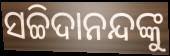
ସଚ୍ଚିଦାନନ୍ଦଙ୍କୁ